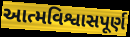
આત્મવિશ્વાસપૂર્ણ